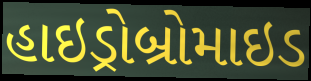
હાઇડ્રોબ્રોમાઇડ